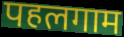
पहलगाम